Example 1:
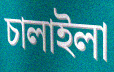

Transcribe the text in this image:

চালাইলা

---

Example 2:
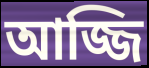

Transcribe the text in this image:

আজ্জি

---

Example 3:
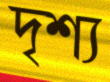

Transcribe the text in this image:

দৃশ্য়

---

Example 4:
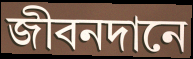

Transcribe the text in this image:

জীবনদানে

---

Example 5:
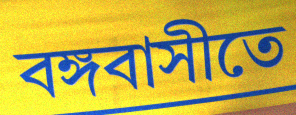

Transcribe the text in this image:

বঙ্গবাসীতে